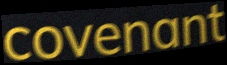
covenant